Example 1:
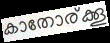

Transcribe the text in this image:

കാതോര്ക്കൂ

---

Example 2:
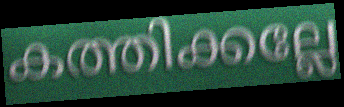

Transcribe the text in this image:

കത്തിക്കല്ലേ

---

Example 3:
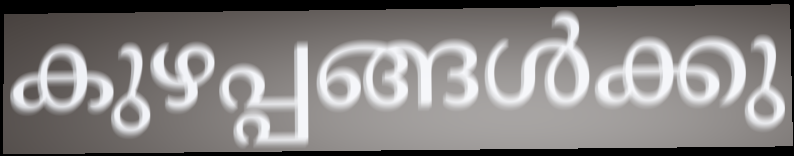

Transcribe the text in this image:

കുഴപ്പങ്ങൾക്കു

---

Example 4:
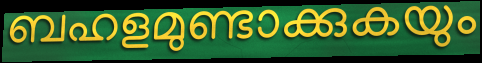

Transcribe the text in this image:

ബഹളമുണ്ടാക്കുകയും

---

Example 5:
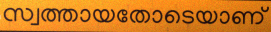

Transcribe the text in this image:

സ്വത്തായതോടെയാണ്